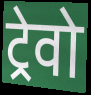
ट्रेवो